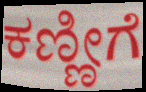
ಕಣ್ಣೀಗೆ